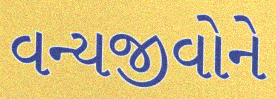
વન્યજીવોને